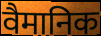
वैमानिक